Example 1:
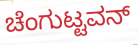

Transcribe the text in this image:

ಚೆಂಗುಟ್ಟವನ್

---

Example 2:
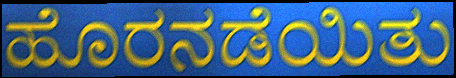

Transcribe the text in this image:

ಹೊರನಡೆಯಿತು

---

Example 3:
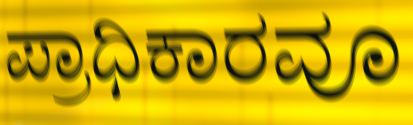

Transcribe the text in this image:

ಪ್ರಾಧಿಕಾರವೂ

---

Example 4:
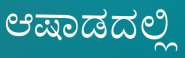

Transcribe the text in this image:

ಆಷಾಡದಲ್ಲಿ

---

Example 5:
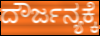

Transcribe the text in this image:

ದೌರ್ಜನ್ಯಕ್ಕೆ